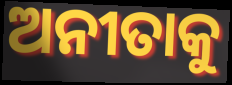
ଅନୀତାକୁ